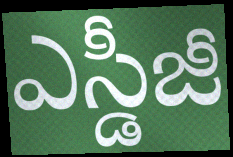
ఎస్డీజీ